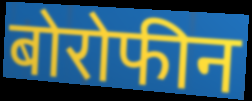
बोरोफीन